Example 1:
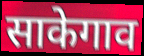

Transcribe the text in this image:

साकेगाव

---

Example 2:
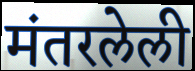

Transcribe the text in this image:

मंतरलेली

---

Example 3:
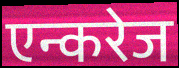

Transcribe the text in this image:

एन्करेज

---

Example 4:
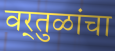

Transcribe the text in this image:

वर्तुळांचा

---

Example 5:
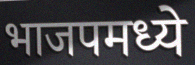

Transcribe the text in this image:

भाजपमध्ये